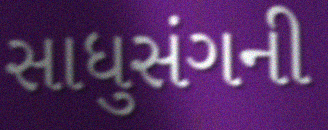
સાધુસંગની